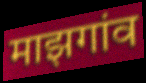
माझगांव